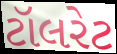
ટૉલરેટ